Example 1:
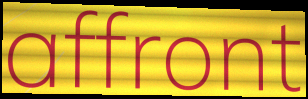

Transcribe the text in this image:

affront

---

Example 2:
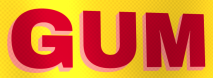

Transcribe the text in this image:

GUM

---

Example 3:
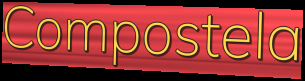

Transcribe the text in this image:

Compostela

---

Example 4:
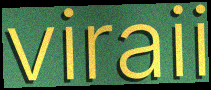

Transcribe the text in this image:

viraii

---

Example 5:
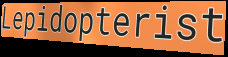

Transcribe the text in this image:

Lepidopterist